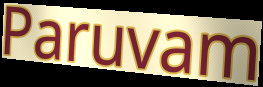
Paruvam